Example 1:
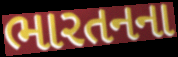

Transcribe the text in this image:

ભારતનના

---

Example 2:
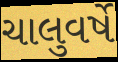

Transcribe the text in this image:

ચાલુવર્ષે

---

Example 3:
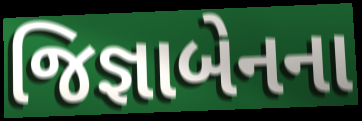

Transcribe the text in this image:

જિજ્ઞાબેનના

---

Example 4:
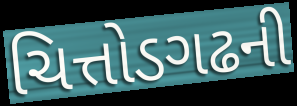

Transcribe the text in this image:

ચિત્તોડગઢની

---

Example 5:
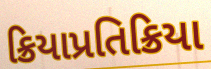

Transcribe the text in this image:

ક્રિયાપ્રતિક્રિયા